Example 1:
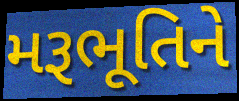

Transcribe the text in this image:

મરૂભૂતિને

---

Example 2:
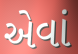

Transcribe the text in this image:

એવાં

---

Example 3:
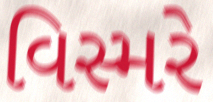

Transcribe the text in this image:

વિસ્મરે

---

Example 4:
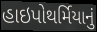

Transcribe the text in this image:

હાઇપોથર્મિયાનું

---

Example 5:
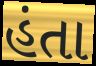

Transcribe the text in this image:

હંતા